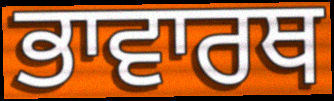
ਭਾਵਾਰਥ